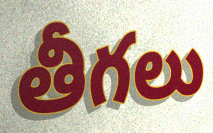
తీగలు